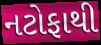
નટોફાથી